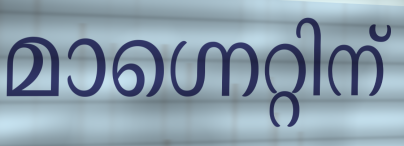
മാഗ്നെറ്റിന്